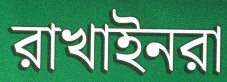
রাখাইনরা